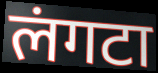
लंगटा